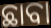
ଛାବା